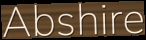
Abshire